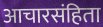
आचारसंहिता